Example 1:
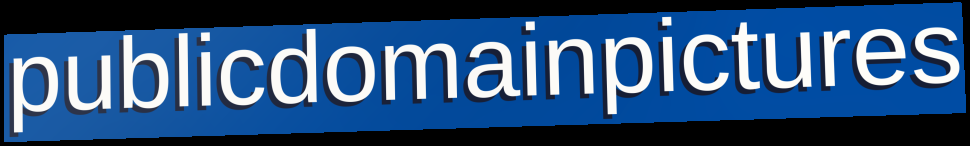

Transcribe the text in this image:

publicdomainpictures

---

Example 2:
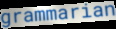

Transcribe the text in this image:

grammarian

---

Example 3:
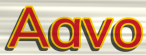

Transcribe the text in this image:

Aavo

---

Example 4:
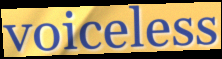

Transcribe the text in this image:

voiceless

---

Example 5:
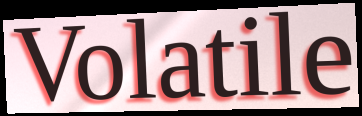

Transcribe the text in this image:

Volatile